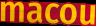
macou